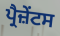
ਪ੍ਰੈਜ਼ੇਂਟਸ